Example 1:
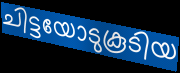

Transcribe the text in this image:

ചിട്ടയോടുകൂടിയ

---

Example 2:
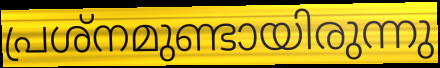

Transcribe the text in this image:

പ്രശ്നമുണ്ടായിരുന്നു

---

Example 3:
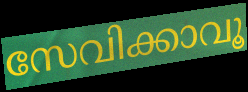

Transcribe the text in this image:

സേവിക്കാവൂ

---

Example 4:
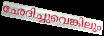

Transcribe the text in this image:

ഛേദിച്ചുവെങ്കിലും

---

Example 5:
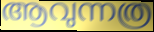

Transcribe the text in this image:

ആവുന്നത്ര